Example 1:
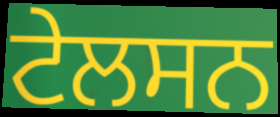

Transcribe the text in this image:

ਟੇਲਸਨ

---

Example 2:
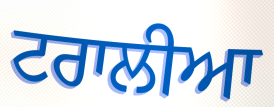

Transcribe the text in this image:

ਟਰਾਲੀਆ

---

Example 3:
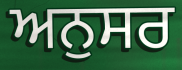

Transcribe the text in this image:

ਅਨੁਸਰ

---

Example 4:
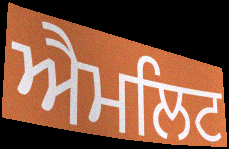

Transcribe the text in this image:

ਐਮਲਿਟ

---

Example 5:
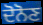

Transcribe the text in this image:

ਦੋਨੋਣ